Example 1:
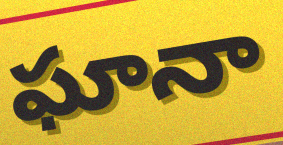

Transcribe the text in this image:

ఘానా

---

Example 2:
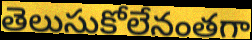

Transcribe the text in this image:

తెలుసుకోలేనంతగా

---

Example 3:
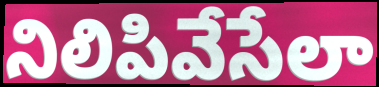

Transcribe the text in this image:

నిలిపివేసేలా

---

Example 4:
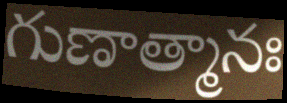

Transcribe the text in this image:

గుణాత్మానః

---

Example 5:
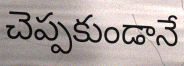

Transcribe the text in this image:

చెప్పకుండానే